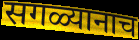
सगळ्यानाच